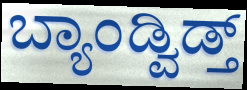
ಬ್ಯಾಂಡ್ವಿಡ್ತ್